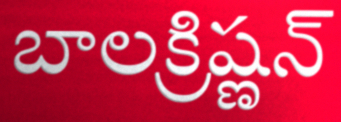
బాలక్రిష్ణన్